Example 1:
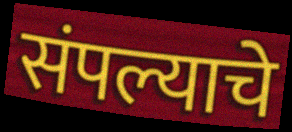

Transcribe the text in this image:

संपल्याचे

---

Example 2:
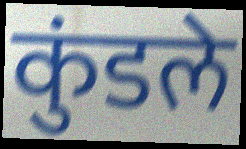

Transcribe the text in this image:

कुंडले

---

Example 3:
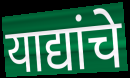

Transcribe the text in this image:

याद्यांचे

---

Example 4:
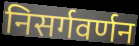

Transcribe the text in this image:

निसर्गवर्णन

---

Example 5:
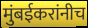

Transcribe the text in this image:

मुंबईकरांनीच